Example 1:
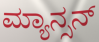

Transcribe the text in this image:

ಮ್ಯಾನ್ಸನ್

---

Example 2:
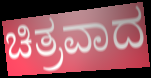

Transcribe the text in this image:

ಚಿತ್ರವಾದ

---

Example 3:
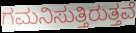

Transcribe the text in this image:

ಗಮನಿಸುತ್ತಿರುತ್ತವೆ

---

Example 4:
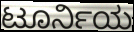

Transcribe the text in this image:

ಟೂರ್ನಿಯ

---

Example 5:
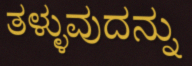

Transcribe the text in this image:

ತಳ್ಳುವುದನ್ನು